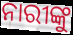
ନାରୀଙ୍କୁ